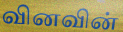
வினவின்